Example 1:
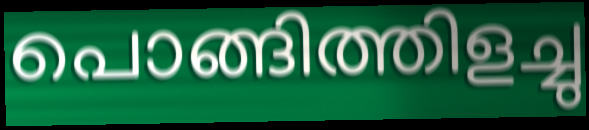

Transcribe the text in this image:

പൊങ്ങിത്തിളച്ചു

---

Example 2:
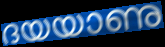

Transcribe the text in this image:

ദയയാണു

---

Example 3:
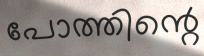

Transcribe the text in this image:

പോത്തിന്റെ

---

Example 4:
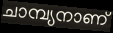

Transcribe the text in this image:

ചാമ്പ്യനാണ്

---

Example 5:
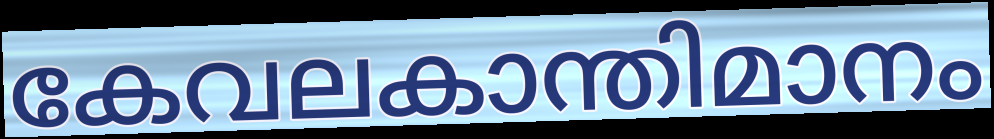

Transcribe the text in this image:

കേവലകാന്തിമാനം